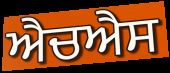
ਐਚਐਸ